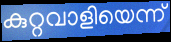
കുറ്റവാളിയെന്ന്